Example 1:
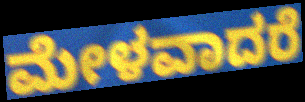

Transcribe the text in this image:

ಮೇಳವಾದರೆ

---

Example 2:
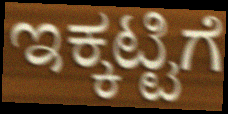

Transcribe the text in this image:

ಇಕ್ಕಟ್ಟಿಗೆ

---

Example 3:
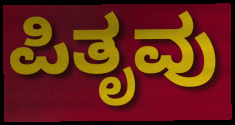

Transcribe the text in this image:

ಪಿತೃವು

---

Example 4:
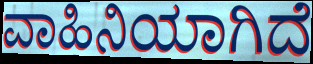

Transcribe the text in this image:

ವಾಹಿನಿಯಾಗಿದೆ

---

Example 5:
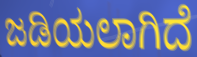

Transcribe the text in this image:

ಜಡಿಯಲಾಗಿದೆ